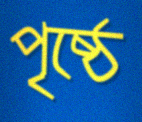
পৃষ্ঠে